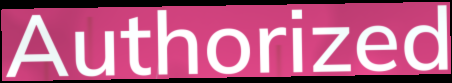
Authorized